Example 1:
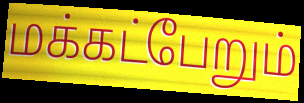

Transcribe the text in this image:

மக்கட்பேறும்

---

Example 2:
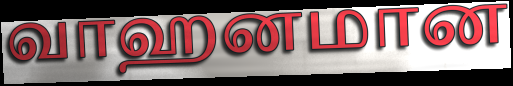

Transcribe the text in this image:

வாஹனமான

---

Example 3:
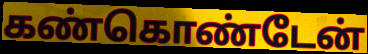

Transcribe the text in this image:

கண்கொண்டேன்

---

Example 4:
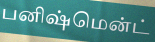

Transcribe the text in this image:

பனிஷ்மென்ட்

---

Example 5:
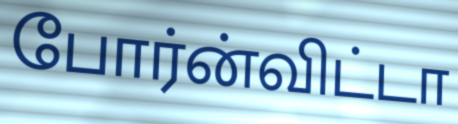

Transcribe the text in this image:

போர்ன்விட்டா